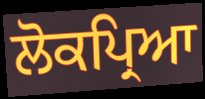
ਲੋਕਪ੍ਰਿਆ